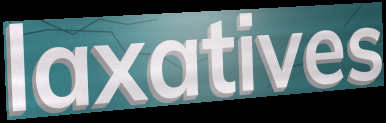
laxatives